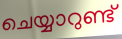
ചെയ്യാറുണ്ട്